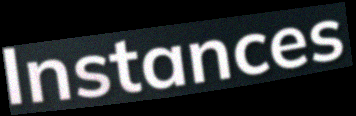
Instances